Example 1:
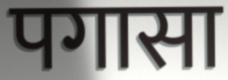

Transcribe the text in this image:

पगासा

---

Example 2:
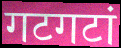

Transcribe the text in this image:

गटगटां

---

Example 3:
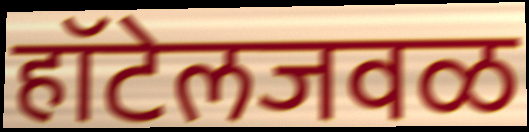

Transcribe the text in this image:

हॉटेलजवळ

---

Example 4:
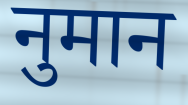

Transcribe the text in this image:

नुमान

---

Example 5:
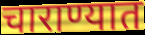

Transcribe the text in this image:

चाराण्यात